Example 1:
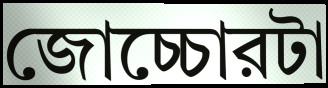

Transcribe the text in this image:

জোচ্চোরটা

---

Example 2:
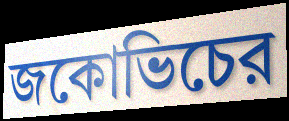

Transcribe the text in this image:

জকোভিচের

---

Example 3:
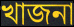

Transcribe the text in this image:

খাজনা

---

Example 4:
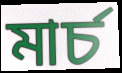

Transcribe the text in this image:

মার্চ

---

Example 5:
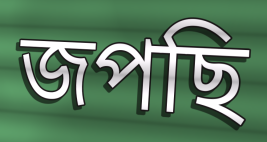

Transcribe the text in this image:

জপছি